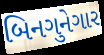
બિનગુનેગાર